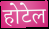
होटेल